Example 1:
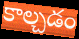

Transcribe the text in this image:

కాల్చడం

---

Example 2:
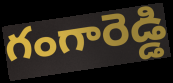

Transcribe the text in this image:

గంగారెడ్డి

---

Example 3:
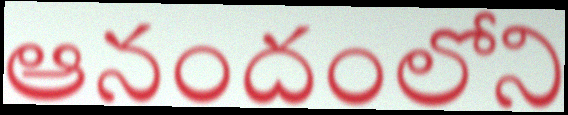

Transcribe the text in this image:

ఆనందంలోని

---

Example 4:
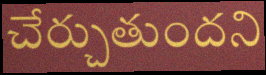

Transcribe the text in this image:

చేర్చుతుందని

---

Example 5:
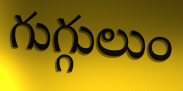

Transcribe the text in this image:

గుగ్గులుం